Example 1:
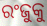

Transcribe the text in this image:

ରଂଜୁକୁ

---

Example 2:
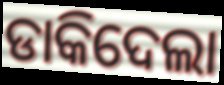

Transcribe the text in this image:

ଡାକିଦେଲା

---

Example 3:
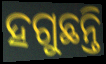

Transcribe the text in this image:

ହଗୁଛନ୍ତି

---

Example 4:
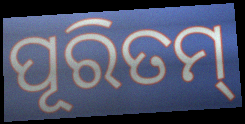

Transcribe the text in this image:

ପୂରିତମ୍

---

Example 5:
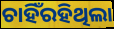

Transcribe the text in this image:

ଚାହିଁରହିଥିଲା